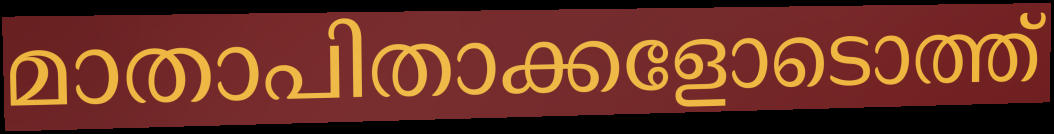
മാതാപിതാക്കളോടൊത്ത്